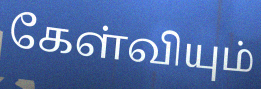
கேள்வியும்